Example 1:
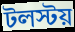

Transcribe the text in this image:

টলস্টয়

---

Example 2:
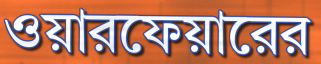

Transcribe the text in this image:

ওয়ারফেয়ারের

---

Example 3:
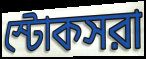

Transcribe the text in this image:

স্টোকসরা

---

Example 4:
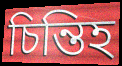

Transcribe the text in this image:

চিন্তিহ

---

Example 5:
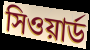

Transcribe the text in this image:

সিওয়ার্ড